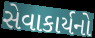
સેવાકાર્યનો